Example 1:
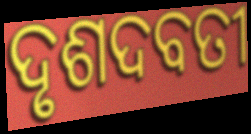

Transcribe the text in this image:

ଦୃଶଦବତୀ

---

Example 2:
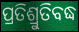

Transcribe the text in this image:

ପ୍ରତିଶ୍ରୁତିବଦ୍ଧ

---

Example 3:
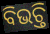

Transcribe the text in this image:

ବିଭଚ୍ତି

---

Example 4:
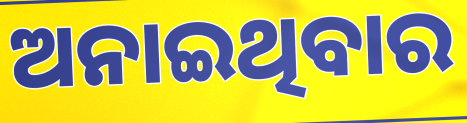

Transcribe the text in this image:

ଅନାଇଥିବାର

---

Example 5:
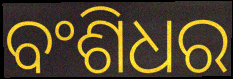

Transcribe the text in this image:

ବଂଶିଧର